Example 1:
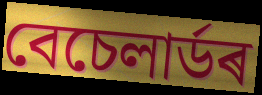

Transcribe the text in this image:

বেচেলাৰ্ডৰ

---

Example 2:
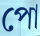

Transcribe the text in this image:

পো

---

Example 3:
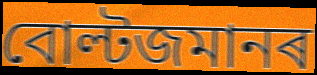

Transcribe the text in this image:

বোল্টজমানৰ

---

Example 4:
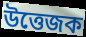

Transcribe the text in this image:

উত্তেজক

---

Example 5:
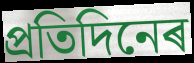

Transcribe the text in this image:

প্ৰতিদিনেৰ